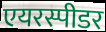
एयरस्पीडर